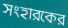
সংহারকের